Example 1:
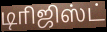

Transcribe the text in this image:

டிரிஜிஸ்ட்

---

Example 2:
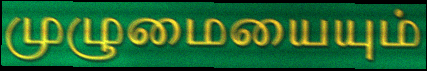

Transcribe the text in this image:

முழுமையையும்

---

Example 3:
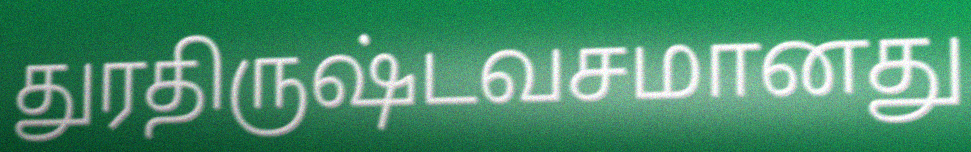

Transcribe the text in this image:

துரதிருஷ்டவசமானது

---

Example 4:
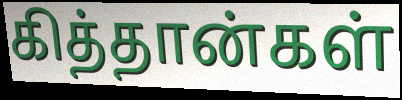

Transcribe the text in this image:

கித்தான்கள்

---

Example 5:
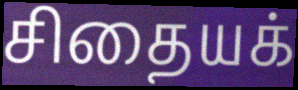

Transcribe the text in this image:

சிதையக்